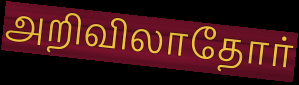
அறிவிலாதோர்